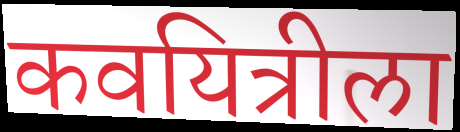
कवयित्रीला